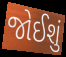
જોઈશું